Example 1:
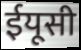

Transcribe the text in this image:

ईयूसी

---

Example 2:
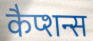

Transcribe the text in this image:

कैप्शन्स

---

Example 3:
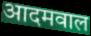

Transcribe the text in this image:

आदमवाल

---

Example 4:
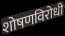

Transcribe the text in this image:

शोषणविरोधी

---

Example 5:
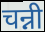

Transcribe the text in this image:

चन्नी